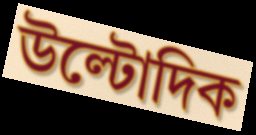
উল্টোদিক